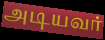
அடியவர்